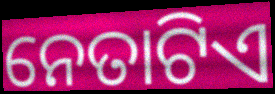
ନେତାଟିଏ